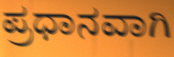
ಪ್ರಧಾನವಾಗಿ